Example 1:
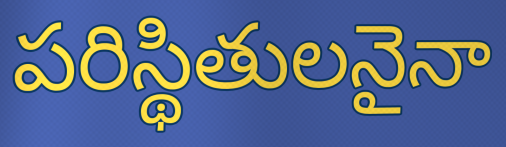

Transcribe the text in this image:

పరిస్థితులనైనా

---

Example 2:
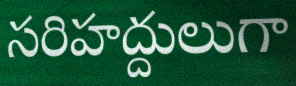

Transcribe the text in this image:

సరిహద్దులుగా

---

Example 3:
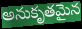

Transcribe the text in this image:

అనుకృతమైన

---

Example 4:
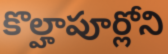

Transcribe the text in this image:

కొల్హాపూర్లోని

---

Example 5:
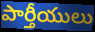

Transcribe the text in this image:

పార్తీయులు